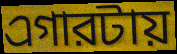
এগারটায়